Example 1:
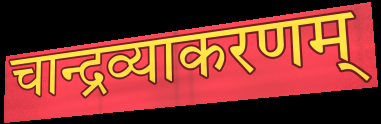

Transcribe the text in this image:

चान्द्रव्याकरणम्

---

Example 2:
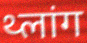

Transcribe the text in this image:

थ्लांग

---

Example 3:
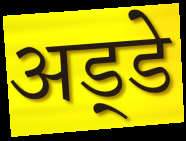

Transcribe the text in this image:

अड्‍डे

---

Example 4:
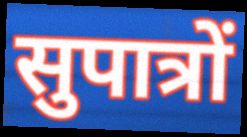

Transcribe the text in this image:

सुपात्रों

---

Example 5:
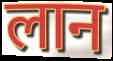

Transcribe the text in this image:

लान